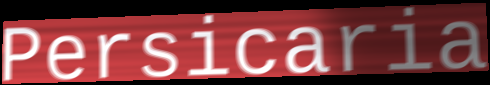
Persicaria